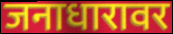
जनाधारावर